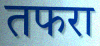
तफरा